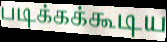
படிக்கக்கூடிய